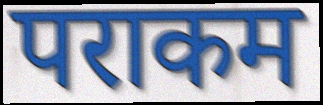
पराकम